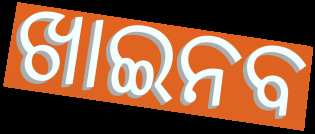
ଖାଇନବ